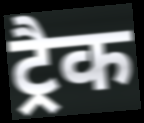
ट्रैक